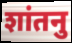
शांतनु